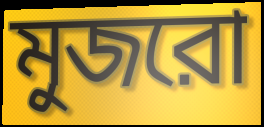
মুজরো